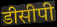
डीसीपी